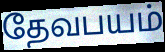
தேவபயம்